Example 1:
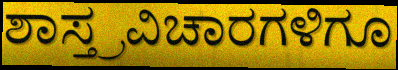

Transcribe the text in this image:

ಶಾಸ್ತ್ರವಿಚಾರಗಳಿಗೂ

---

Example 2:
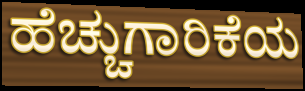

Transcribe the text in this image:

ಹೆಚ್ಚುಗಾರಿಕೆಯ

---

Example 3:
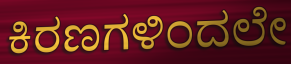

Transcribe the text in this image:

ಕಿರಣಗಳಿಂದಲೇ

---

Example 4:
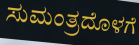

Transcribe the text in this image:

ಸುಮಂತ್ರದೊಳಗೆ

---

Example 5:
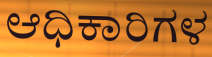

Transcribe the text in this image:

ಆಧಿಕಾರಿಗಳ